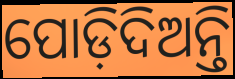
ପୋଡ଼ିଦିଅନ୍ତି